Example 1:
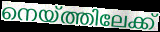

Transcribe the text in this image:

നെയ്ത്തിലേക്ക്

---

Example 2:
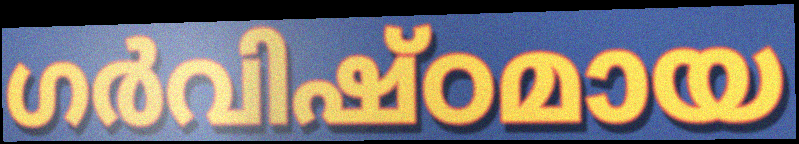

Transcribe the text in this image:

ഗർവിഷ്ഠമായ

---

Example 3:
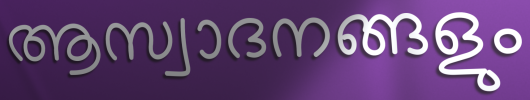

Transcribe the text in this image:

ആസ്വാദനങ്ങളും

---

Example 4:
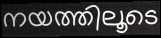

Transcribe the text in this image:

നയത്തിലൂടെ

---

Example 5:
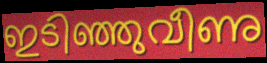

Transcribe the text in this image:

ഇടിഞ്ഞുവീണു